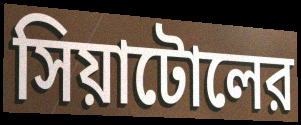
সিয়াটোলের